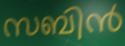
സബിൻ